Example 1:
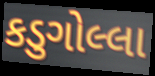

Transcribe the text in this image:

કડુગોલ્લા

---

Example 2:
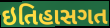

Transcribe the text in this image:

ઇતિહાસગત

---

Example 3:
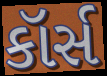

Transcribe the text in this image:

કૉર્સ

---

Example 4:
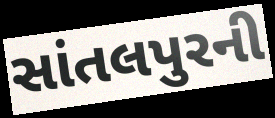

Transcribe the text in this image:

સાંતલપુરની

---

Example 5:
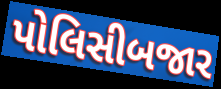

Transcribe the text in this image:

પોલિસીબજાર